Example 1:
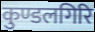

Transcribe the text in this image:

कुण्डलगिरि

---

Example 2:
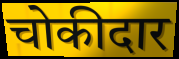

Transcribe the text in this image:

चोकीदार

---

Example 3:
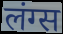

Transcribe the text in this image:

लंग्स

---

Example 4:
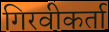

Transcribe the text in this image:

गिरवीकर्ता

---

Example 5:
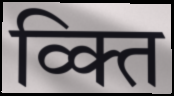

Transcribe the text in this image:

व्क्ति